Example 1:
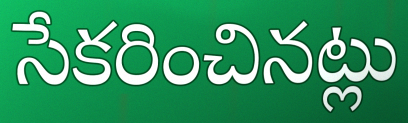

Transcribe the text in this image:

సేకరించినట్లు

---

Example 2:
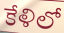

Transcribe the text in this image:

కేళిలో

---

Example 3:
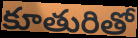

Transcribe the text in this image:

కూతురితో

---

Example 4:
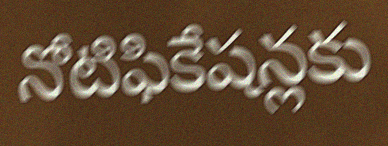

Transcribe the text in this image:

నోటిఫికేషన్లకు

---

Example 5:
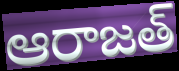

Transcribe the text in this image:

ఆరాజత్